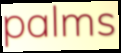
palms